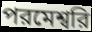
পরমেশ্বরি